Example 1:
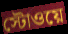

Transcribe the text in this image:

স্টোওয়ে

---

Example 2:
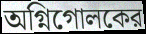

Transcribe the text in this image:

অগ্নিগোলকের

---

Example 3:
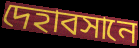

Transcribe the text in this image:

দেহাবসানে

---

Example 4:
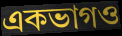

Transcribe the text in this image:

একভাগও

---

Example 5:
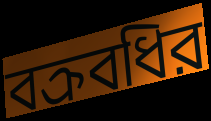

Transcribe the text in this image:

বক্রবধির